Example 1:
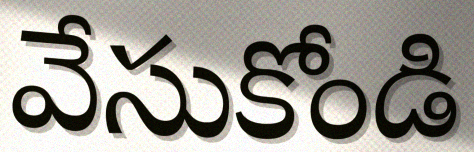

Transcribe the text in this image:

వేసుకోండి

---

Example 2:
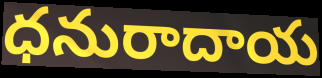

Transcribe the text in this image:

ధనురాదాయ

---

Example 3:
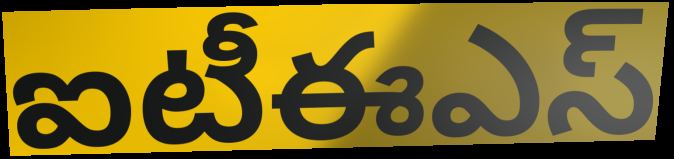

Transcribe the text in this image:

ఐటీఈఎస్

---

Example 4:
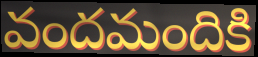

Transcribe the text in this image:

వందమందికి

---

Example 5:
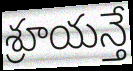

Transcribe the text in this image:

శ్రూయన్తే